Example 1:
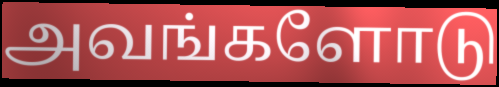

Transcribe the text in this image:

அவங்களோடு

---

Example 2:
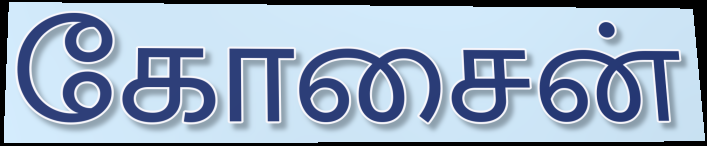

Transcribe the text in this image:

கோசைன்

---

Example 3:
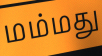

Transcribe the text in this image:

மம்மது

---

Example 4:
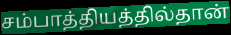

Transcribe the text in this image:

சம்பாத்தியத்தில்தான்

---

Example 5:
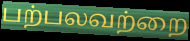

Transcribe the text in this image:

பற்பலவற்றை